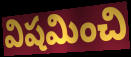
విషమించి